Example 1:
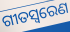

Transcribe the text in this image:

ଗୀତସ୍ବରେଣ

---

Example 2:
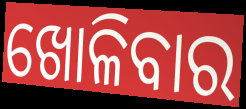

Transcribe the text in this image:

ଖୋଳିବାର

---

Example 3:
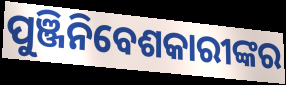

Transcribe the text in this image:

ପୁଞ୍ଜିନିବେଶକାରୀଙ୍କର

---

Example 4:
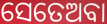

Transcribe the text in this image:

ସେତେଅବା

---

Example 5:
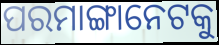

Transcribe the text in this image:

ପରମାଙ୍ଗାନେଟକୁ